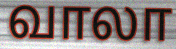
வாலா